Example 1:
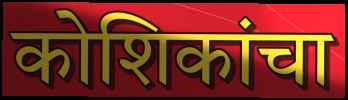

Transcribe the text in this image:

कोशिकांचा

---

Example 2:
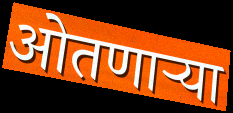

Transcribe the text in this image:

ओतणाऱ्या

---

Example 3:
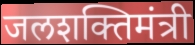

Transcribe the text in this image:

जलशक्तिमंत्री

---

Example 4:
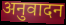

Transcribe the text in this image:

अनुवादन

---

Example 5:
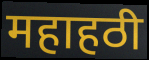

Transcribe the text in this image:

महाहठी